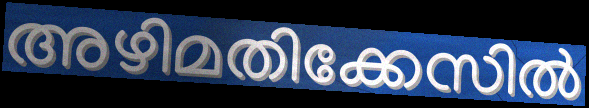
അഴിമതിക്കേസിൽ